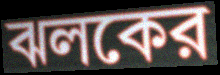
ঝলকের